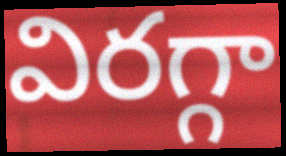
విరగ్గా